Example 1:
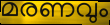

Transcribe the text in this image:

മരണവും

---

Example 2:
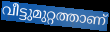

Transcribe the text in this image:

വീട്ടുമുറ്റത്താണ്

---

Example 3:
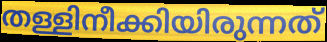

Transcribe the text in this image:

തള്ളിനീക്കിയിരുന്നത്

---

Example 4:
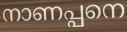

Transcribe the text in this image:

നാണപ്പനെ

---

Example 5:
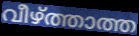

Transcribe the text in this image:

വീഴ്ത്താത്ത